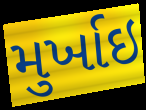
મુર્ખાઇ